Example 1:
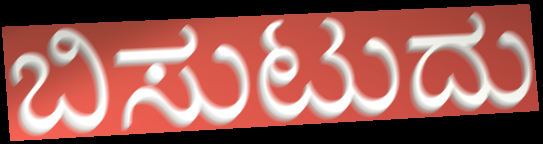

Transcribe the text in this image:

ಬಿಸುಟುದು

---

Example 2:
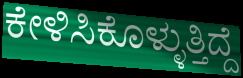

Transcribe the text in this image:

ಕೇಳಿಸಿಕೊಳ್ಳುತ್ತಿದ್ದೆ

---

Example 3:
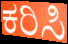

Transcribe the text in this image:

ಕರಿಸಿ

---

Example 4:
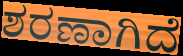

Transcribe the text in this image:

ಶರಣಾಗಿದೆ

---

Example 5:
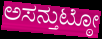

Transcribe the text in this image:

ಅಸನ್ತುಟ್ಠೋ